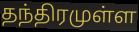
தந்திரமுள்ள